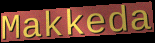
Makkeda